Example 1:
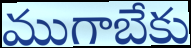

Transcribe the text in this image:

ముగాబేకు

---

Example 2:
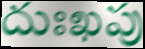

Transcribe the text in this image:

దుఃఖపు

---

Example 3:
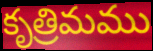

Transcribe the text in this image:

కృత్రిమము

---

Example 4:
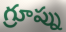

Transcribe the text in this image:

గ్రూప్ను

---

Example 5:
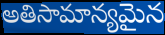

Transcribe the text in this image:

అతిసామాన్యమైన